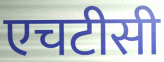
एचटीसी